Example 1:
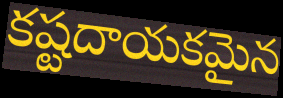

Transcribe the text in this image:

కష్టదాయకమైన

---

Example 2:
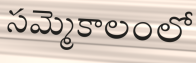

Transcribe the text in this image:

సమ్మెకాలంలో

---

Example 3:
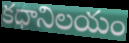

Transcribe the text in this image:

కధానిలయం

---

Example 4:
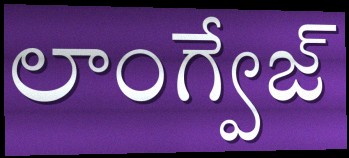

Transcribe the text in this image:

లాంగ్వేజ్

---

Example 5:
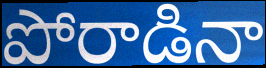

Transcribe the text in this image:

పోరాడినా